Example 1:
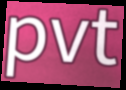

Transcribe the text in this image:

pvt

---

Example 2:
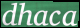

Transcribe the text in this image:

dhaca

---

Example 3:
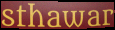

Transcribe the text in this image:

sthawar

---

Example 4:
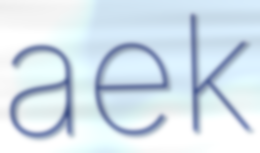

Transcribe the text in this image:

aek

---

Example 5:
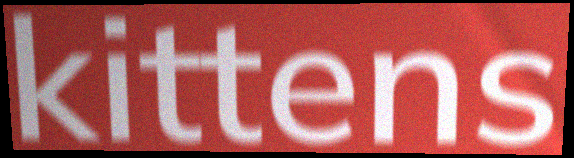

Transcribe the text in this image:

kittens